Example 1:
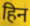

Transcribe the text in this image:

हिन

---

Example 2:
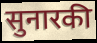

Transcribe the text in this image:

सुनारकी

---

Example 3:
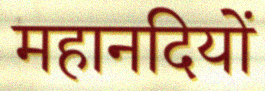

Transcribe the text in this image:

महानदियों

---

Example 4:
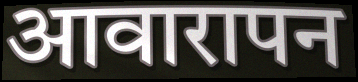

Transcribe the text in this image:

आवारापन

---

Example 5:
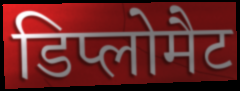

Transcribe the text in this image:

डिप्लोमैट